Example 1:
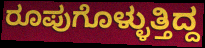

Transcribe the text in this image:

ರೂಪುಗೊಳ್ಳುತ್ತಿದ್ದ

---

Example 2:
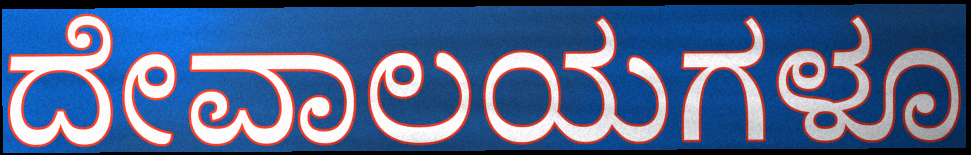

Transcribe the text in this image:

ದೇವಾಲಯಗಳೂ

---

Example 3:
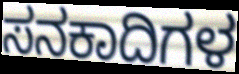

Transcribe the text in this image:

ಸನಕಾದಿಗಳ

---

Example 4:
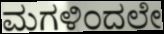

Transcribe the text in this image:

ಮಗಳಿಂದಲೇ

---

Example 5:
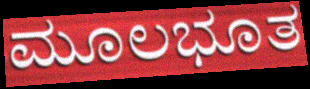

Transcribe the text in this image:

ಮೂಲಭೂತ